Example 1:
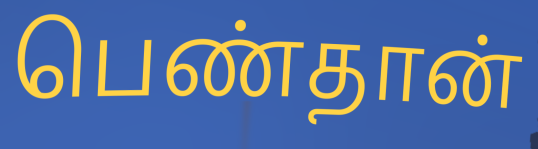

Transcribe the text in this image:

பெண்தான்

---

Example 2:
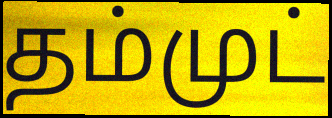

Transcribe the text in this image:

தம்முட்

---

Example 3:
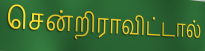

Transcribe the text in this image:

சென்றிராவிட்டால்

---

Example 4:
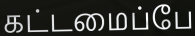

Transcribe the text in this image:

கட்டமைப்பே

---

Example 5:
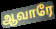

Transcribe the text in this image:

ஆவாரே